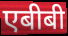
एबीबी